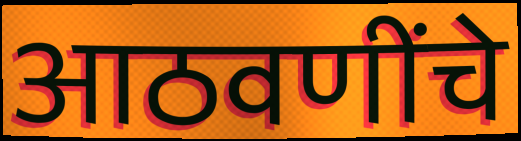
आठवणींचे